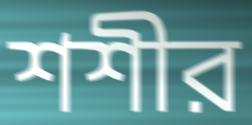
শশীর